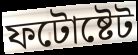
ফটোষ্টেট